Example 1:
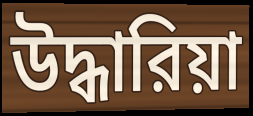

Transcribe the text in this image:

উদ্ধারিয়া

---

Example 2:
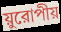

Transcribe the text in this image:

য়ুরোপীয়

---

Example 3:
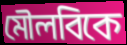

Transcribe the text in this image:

মৌলবিকে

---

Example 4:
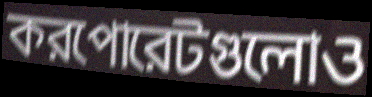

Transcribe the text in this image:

করপোরেটগুলোও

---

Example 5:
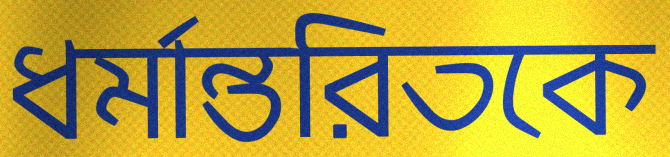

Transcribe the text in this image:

ধর্মান্তরিতকে